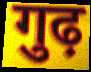
गुढ़